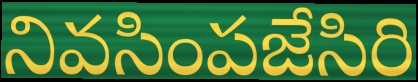
నివసింపజేసిరి